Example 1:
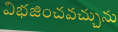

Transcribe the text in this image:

విభజించవచ్చును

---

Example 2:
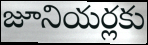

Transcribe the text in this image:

జూనియర్లకు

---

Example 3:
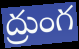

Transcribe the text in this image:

ద్రుంగ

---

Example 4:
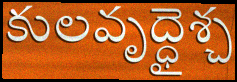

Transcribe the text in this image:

కులవృద్ధైశ్చ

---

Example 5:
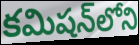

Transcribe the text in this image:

కమిషన్‌లోని